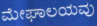
ಮೇಘಾಲಯವು